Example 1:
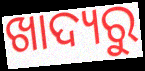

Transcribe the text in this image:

ଖାଦ୍ୟରୁ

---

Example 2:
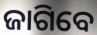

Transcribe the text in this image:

ଜାଗିବେ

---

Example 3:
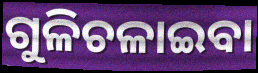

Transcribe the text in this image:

ଗୁଳିଚଳାଇବା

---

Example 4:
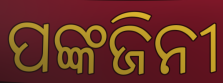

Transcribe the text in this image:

ପଙ୍କଜିନୀ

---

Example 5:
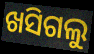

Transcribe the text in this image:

ଖସିଗଲୁ